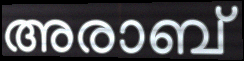
അരാബ്